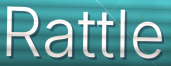
Rattle